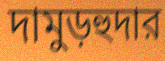
দামুড়হুদার